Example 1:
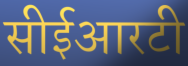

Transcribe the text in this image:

सीईआरटी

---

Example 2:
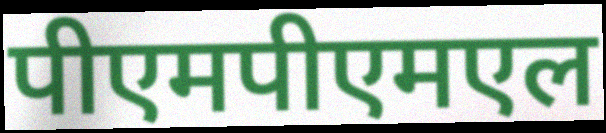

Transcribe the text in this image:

पीएमपीएमएल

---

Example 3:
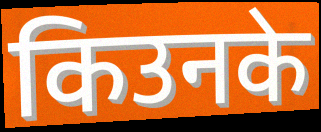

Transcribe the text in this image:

किउनके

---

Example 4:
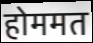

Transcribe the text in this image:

होममत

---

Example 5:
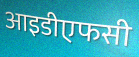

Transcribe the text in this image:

आइडीएफसी